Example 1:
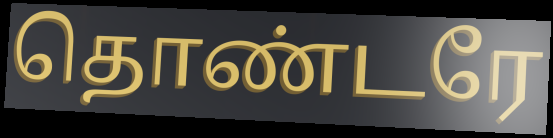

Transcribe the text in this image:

தொண்டரே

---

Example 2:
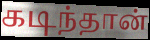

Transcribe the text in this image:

கடிந்தான்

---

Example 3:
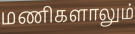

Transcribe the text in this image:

மணிகளாலும்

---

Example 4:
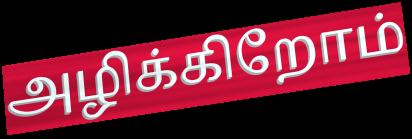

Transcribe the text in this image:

அழிக்கிறோம்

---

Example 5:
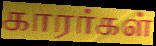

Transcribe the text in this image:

காரர்கள்